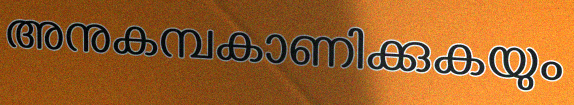
അനുകമ്പകാണിക്കുകയും